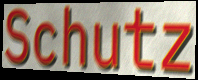
Schutz